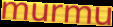
murmu